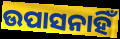
ଉପାସନାହିଁ